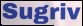
Sugriv